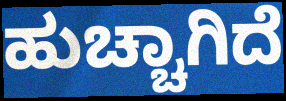
ಹುಚ್ಚಾಗಿದೆ